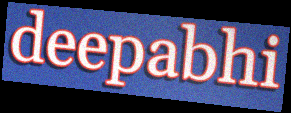
deepabhi